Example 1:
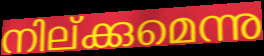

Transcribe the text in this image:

നില്ക്കുമെന്നു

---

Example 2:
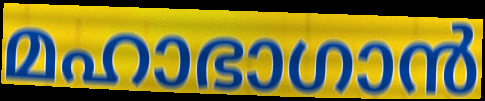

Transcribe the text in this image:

മഹാഭാഗാൻ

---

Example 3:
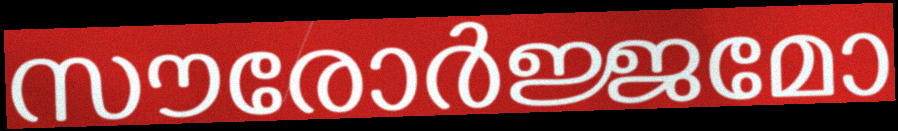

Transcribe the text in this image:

സൗരോർജ്ജമോ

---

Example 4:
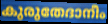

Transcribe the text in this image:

കുരുതേദാനീം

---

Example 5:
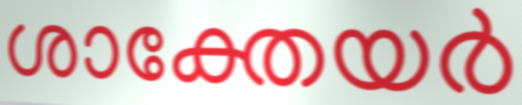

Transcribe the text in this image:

ശാക്തേയർ